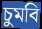
চুমবি